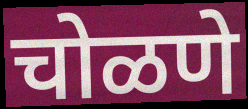
चोळणे